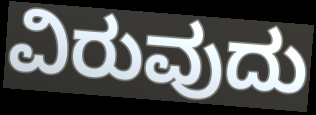
ವಿರುವುದು